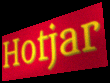
Hotjar